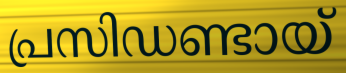
പ്രസിഡണ്ടായ്